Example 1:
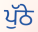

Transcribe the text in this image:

ਪੁੱਠੇ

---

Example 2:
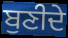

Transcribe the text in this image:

ਬੁਣੀਦੇ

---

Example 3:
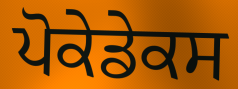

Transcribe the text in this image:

ਪੋਕੇਡੇਕਸ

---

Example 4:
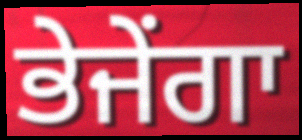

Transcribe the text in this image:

ਭੇਜੇਂਗਾ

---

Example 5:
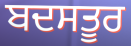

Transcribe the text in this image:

ਬਦਸਤੂਰ